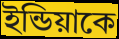
ইন্ডিয়াকে